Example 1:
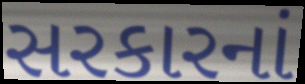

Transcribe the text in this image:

સરકારનાં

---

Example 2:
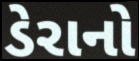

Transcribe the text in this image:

ડેરાનો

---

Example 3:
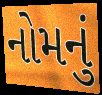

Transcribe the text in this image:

નોમનું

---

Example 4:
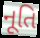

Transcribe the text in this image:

નૂતિ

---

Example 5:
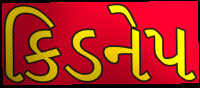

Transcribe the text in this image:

કિડનેપ